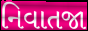
નિવાતજા